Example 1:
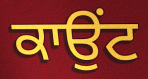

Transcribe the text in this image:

ਕਾਉਂਟ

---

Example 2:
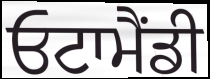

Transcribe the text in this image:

ਓਟਾਮੈਂਡੀ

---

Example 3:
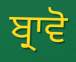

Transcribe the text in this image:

ਬ੍ਰਾਵੋ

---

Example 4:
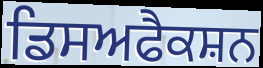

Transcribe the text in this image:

ਡਿਸਅਫੈਕਸ਼ਨ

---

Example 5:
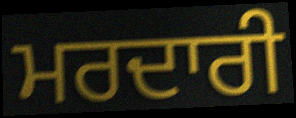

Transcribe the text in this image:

ਮਰਦਾਰੀ